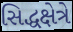
સિદ્ધક્ષેત્રે